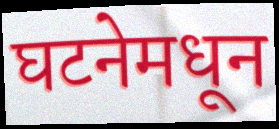
घटनेमधून